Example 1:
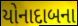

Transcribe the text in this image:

યોનાદાબના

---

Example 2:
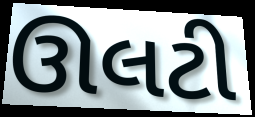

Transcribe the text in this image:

ઊલટી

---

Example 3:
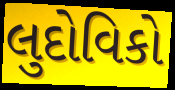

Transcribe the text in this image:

લુદોવિકો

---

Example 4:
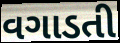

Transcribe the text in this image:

વગાડતી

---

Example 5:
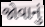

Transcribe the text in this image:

જોવાનું